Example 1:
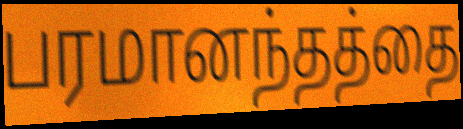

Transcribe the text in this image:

பரமானந்தத்தை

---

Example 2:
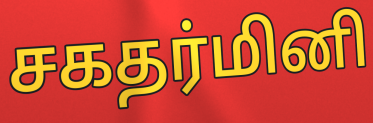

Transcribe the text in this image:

சகதர்மினி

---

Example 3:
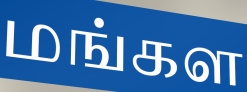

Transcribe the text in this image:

மங்கள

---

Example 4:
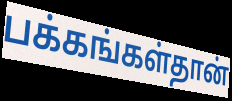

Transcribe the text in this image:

பக்கங்கள்தான்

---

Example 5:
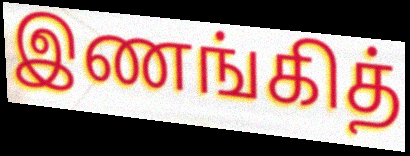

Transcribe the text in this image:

இணங்கித்